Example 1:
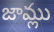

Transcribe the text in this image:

జామ్లు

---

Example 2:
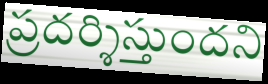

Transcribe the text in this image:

ప్రదర్శిస్తుందని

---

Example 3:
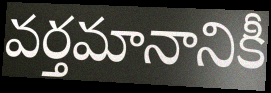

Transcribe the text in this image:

వర్తమానానికీ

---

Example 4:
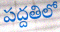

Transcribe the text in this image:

పద్దతిలో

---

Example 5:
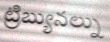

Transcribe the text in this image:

ట్రిబ్యునల్ను